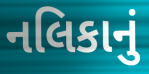
નલિકાનું